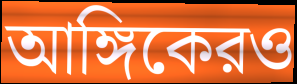
আঙ্গিকেরও